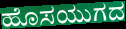
ಹೊಸಯುಗದ